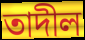
তাদীল